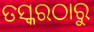
ତସ୍କରଠାରୁ